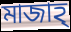
মাজাহ্